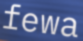
fewa